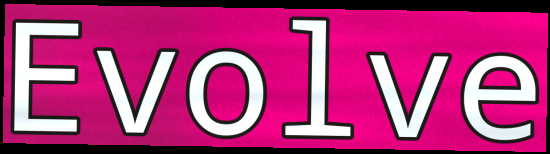
Evolve